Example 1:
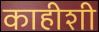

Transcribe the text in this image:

काहीशी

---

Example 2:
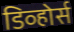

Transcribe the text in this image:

डिव्होर्स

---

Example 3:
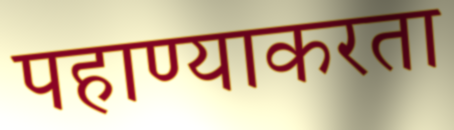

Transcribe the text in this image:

पहाण्याकरता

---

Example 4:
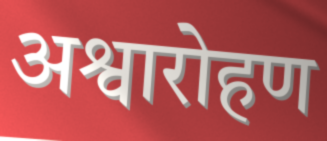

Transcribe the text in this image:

अश्वारोहण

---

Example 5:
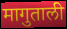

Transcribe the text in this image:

मागुताली